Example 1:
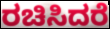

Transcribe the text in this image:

ರಚಿಸಿದರೆ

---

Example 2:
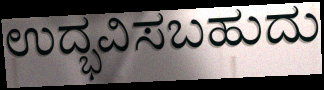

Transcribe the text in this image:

ಉದ್ಭವಿಸಬಹುದು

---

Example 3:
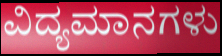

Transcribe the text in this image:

ವಿದ್ಯಮಾನಗಳು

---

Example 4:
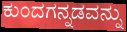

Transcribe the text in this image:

ಕುಂದಗನ್ನಡವನ್ನು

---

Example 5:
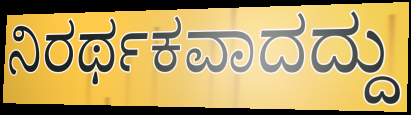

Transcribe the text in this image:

ನಿರರ್ಥಕವಾದದ್ದು